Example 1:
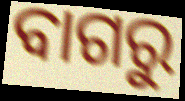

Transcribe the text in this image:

ବାଗରୁ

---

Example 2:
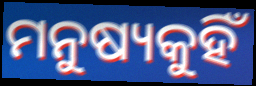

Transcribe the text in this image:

ମନୁଷ୍ୟକୁହିଁ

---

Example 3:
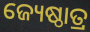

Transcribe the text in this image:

ଜ୍ୟେଷ୍ଠାତ୍ର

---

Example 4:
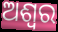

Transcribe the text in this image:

ଅଶ୍ୱର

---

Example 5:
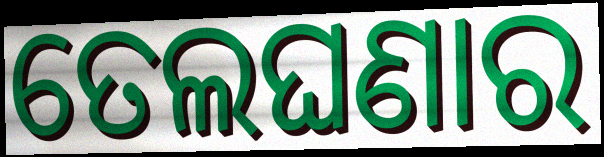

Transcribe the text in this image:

ତେଲଘଣାର